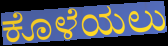
ಕೊಳೆಯಲು